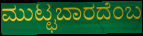
ಮುಟ್ಟಬಾರದೆಂಬ